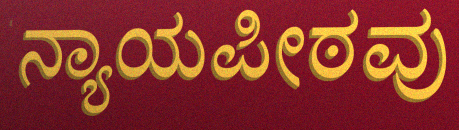
ನ್ಯಾಯಪೀಠವು